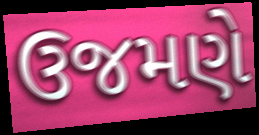
ઉજમણે